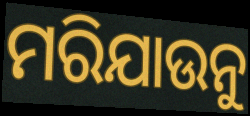
ମରିଯାଉନୁ